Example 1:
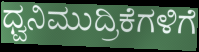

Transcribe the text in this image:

ಧ್ವನಿಮುದ್ರಿಕೆಗಳಿಗೆ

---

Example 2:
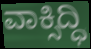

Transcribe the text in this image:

ವಾಕ್ಸಿದ್ಧಿ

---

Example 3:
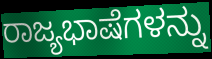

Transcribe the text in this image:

ರಾಜ್ಯಭಾಷೆಗಳನ್ನು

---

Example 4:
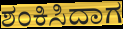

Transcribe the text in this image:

ಶಂಕಿಸಿದಾಗ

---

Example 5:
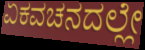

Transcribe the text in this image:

ಏಕವಚನದಲ್ಲೇ